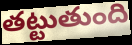
తట్టుతుంది